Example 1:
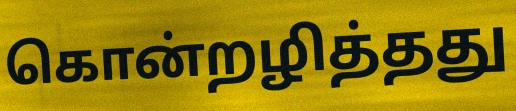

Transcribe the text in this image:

கொன்றழித்தது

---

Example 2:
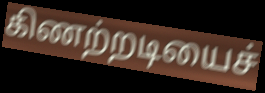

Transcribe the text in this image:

கிணற்றடியைச்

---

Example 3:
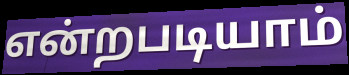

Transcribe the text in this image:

என்றபடியாம்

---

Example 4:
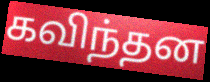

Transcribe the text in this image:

கவிந்தன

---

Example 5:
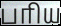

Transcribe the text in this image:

பரிய